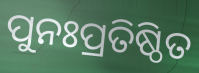
ପୁନଃପ୍ରତିଷ୍ଠିତ